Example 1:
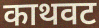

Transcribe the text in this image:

काथवट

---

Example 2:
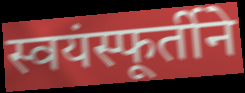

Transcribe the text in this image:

स्वयंस्फूर्तीने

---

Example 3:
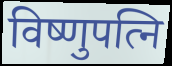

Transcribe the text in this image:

विष्णुपत्नि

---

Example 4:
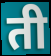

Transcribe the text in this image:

ती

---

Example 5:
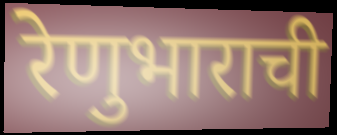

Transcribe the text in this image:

रेणुभाराची